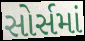
સોર્સમાં